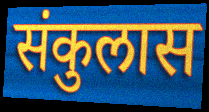
संकुलास